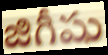
జిగీషు